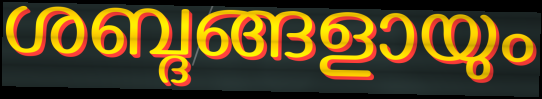
ശബ്ദങ്ങളായും